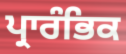
ਪ੍ਰਾਰੰਭਿਕ